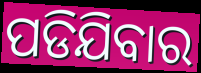
ପଡିଯିବାର